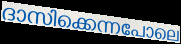
ദാസിക്കെന്നപോലെ